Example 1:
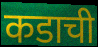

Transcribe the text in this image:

कडाची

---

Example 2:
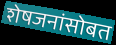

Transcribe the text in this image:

शेषजनांसोबत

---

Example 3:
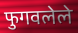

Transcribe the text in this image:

फुगवलेले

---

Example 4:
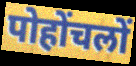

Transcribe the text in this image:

पोहोंचलों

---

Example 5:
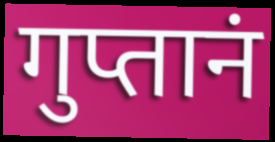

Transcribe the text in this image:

गुप्तानं